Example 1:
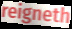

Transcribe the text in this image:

reigneth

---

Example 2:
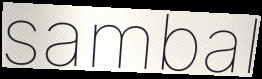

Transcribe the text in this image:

sambal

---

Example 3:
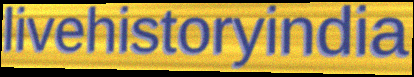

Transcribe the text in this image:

livehistoryindia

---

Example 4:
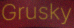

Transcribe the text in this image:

Grusky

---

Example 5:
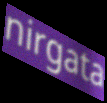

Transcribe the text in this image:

nirgata